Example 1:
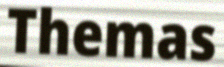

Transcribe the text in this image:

Themas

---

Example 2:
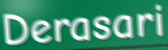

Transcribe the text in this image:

Derasari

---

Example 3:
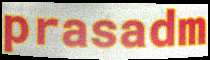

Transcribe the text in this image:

prasadm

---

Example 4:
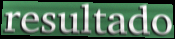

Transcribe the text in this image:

resultado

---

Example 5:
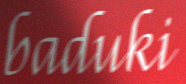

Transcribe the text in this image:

baduki